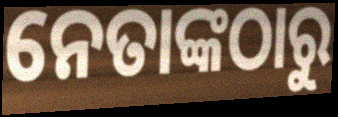
ନେତାଙ୍କଠାରୁ